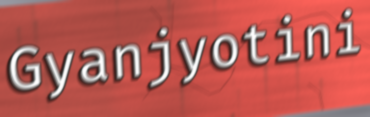
Gyanjyotini